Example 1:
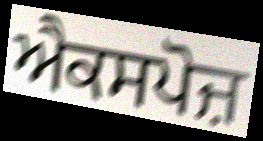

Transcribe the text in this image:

ਐਕਸਪੋਜ਼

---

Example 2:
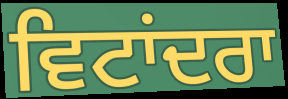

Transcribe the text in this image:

ਵਿਟਾਂਦਰਾ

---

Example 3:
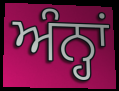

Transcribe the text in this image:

ਅੰਨ੍ਹਾਂ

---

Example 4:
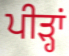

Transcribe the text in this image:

ਪੀੜ੍ਹਾਂ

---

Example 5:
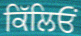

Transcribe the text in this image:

ਕਿੱਲਿਓਂ